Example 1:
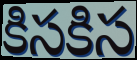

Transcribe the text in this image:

కిసకిస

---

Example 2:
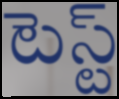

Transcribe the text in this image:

టెస్ట్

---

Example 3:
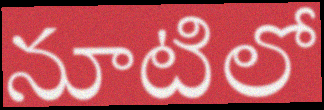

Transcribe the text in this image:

నూటిలో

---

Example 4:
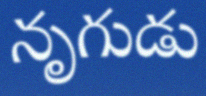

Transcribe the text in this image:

నృగుడు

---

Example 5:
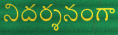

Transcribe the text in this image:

నిదర్శనంగా